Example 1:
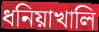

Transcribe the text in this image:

ধনিয়াখালি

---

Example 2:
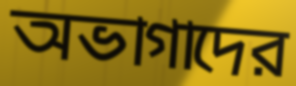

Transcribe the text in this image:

অভাগাদের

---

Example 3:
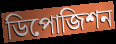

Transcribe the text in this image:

ডিপোজিশন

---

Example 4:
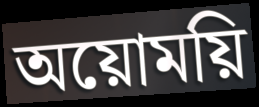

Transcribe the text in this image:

অয়োময়ি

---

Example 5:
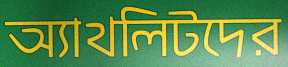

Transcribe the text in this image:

অ্যাথলিটদের